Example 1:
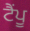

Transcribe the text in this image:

ਟੈਂਪੂ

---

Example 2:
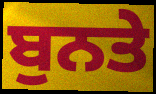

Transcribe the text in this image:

ਬੁਨਤੇ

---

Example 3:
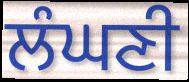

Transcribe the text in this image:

ਲੰਘਣੀ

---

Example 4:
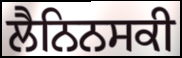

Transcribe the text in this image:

ਲੈਨਿਨਸਕੀ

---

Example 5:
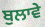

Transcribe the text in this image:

ਬੁਲਾਵੇ